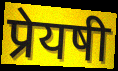
प्रेयषी